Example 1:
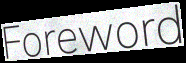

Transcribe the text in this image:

Foreword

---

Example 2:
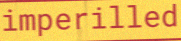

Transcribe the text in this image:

imperilled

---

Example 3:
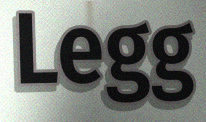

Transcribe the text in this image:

Legg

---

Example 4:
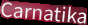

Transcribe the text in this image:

Carnatika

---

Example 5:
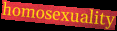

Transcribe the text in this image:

homosexuality